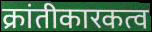
क्रांतीकारकत्व